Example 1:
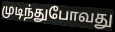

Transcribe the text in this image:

முடிந்துபோவது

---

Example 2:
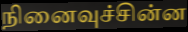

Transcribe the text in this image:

நினைவுச்சின்ன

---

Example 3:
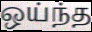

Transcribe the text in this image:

ஒய்ந்த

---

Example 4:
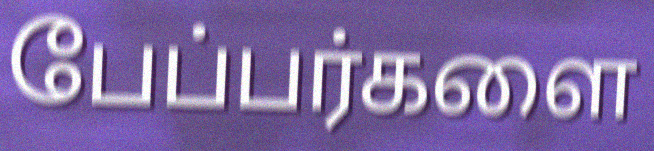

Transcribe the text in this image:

பேப்பர்களை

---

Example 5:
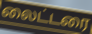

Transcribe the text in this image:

லைட்டரை